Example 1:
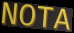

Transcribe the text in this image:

NOTA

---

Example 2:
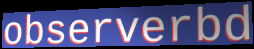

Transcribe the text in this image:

observerbd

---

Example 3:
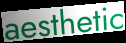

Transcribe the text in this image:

aesthetic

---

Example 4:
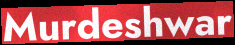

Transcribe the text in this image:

Murdeshwar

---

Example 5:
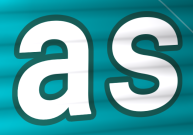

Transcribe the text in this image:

as